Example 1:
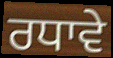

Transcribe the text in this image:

ਰਧਾਵੇ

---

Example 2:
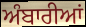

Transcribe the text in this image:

ਅੰਬਾਰੀਆਂ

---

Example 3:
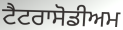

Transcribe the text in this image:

ਟੈਟਰਾਸੋਡੀਅਮ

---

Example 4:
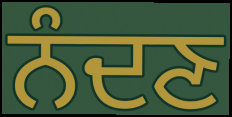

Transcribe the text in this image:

ਨੰਦਣ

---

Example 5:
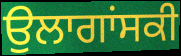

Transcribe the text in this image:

ਉਲਾਗਾਂਸਕੀ